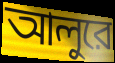
আলুরে